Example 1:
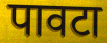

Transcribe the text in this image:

पावटा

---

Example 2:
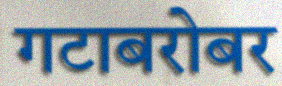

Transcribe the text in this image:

गटाबरोबर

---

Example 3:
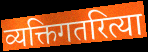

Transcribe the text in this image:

व्यक्तिगतरित्या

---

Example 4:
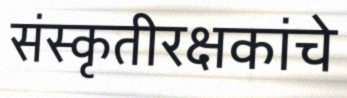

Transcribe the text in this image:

संस्कृतीरक्षकांचे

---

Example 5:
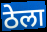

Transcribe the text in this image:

ठेला